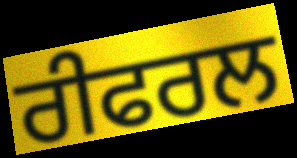
ਰੀਫਰਲ